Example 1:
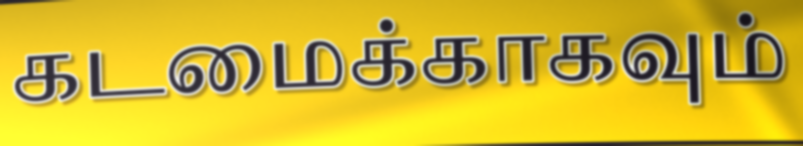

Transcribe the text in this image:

கடமைக்காகவும்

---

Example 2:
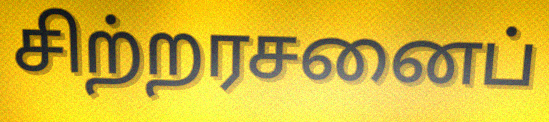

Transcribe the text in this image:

சிற்றரசனைப்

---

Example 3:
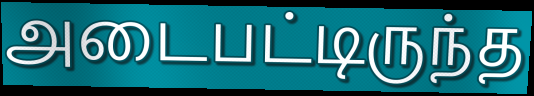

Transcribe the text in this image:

அடைபட்டிருந்த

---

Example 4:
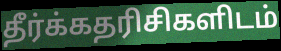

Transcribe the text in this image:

தீர்க்கதரிசிகளிடம்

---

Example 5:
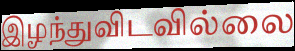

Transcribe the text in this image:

இழந்துவிடவில்லை